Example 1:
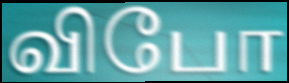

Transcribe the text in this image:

விபோ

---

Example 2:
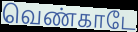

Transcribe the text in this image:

வெண்காடே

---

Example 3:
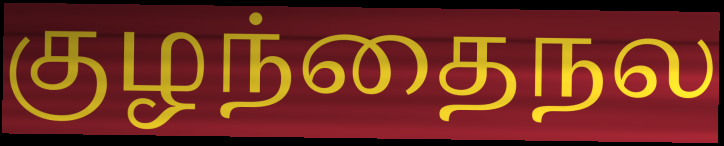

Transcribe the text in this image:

குழந்தைநல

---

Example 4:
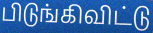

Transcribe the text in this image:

பிடுங்கிவிட்டு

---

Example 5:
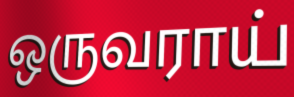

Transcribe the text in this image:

ஒருவராய்